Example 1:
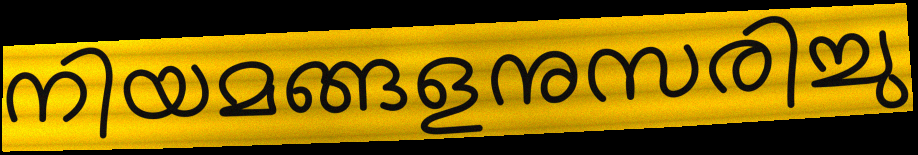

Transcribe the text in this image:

നിയമങ്ങളനുസരിച്ചു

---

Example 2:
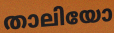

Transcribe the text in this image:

താലിയോ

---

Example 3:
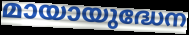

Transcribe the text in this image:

മായായുദ്ധേന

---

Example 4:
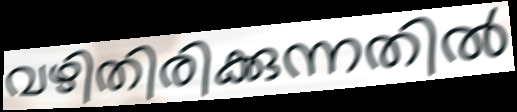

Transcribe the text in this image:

വഴിതിരിക്കുന്നതിൽ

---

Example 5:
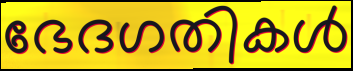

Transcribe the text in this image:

ഭേദഗതികൾ